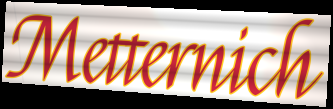
Metternich